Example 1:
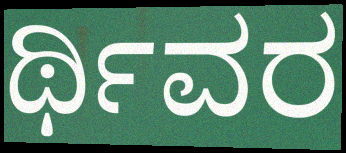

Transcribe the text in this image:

ರ್ಥಿವರ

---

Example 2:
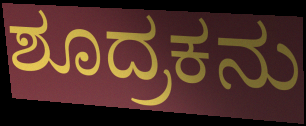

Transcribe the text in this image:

ಶೂದ್ರಕನು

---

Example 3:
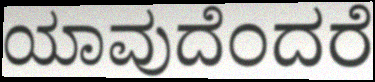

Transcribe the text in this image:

ಯಾವುದೆಂದರೆ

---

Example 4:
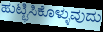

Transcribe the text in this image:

ಹುಟ್ಟಿಸಿಕೊಳ್ಳುವುದು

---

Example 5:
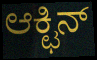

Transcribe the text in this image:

ಆಕ್ಟಿನ್